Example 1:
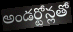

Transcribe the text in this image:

అండర్టోన్లతో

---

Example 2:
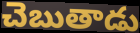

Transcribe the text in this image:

చెబుతాడు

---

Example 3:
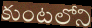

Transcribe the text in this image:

కుంటలోని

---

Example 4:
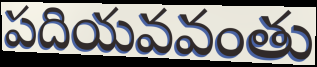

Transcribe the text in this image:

పదియవవంతు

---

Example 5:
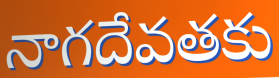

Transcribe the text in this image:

నాగదేవతకు